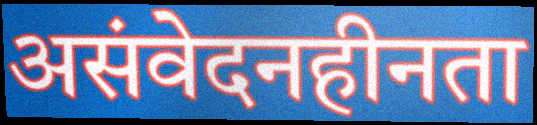
असंवेदनहीनता